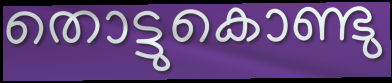
തൊട്ടുകൊണ്ടു